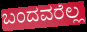
ಬಂದವರೆಲ್ಲ